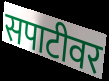
सपाटीवर